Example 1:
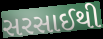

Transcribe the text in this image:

સરસાઈથી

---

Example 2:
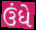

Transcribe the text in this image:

ઉંધે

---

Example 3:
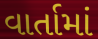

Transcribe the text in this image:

વાર્તામાં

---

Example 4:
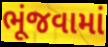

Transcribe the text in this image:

ભૂંજવામાં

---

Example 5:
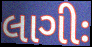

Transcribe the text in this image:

લાગીઃ